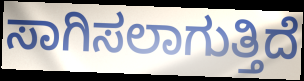
ಸಾಗಿಸಲಾಗುತ್ತಿದೆ